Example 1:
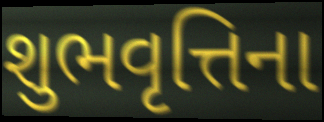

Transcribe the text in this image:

શુભવૃત્તિના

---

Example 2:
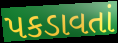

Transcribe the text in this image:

પકડાવતાં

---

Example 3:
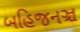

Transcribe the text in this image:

બહિજનઞ્ચ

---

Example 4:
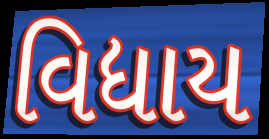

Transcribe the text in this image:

વિદ્યાય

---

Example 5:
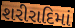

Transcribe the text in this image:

શરીરાદિમાં